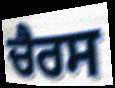
ਚੈਰਸ